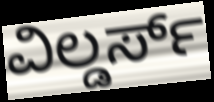
ವಿಲ್ಡರ್ಸ್